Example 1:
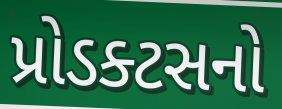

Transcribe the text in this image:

પ્રોડક્ટસનો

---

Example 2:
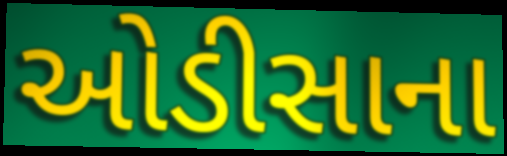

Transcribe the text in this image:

ઓડીસાના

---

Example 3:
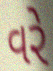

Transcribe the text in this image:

વરે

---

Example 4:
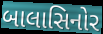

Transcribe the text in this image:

બાલાસિનોર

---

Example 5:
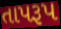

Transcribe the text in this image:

તાપરૂપ